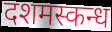
दशमस्कन्ध